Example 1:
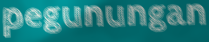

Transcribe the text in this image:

pegunungan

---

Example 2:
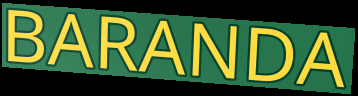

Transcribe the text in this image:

BARANDA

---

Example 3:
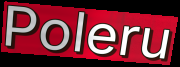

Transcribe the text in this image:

Poleru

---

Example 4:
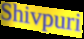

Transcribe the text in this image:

Shivpuri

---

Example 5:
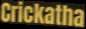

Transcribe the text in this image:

Crickatha